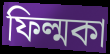
ফিল্মকা